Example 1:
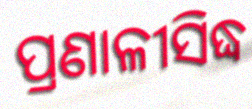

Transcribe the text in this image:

ପ୍ରଣାଳୀସିଦ୍ଧ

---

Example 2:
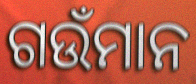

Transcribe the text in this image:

ଗଉଁମାନ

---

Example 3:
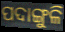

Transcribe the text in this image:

ପଦାଙ୍ଗୁଳି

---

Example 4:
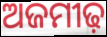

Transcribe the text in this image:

ଅଜମୀଢ଼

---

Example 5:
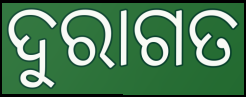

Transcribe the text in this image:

ଦୁରାଗତ